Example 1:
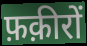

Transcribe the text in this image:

फ़क़ीरों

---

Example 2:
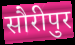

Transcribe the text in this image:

सौरीपुर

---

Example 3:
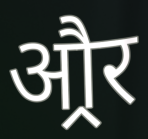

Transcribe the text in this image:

औ्रर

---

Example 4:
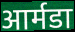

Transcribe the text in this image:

आर्मडा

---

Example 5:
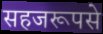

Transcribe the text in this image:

सहजरूपसे